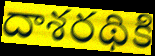
దాశరథికి